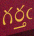
గర్తఁ